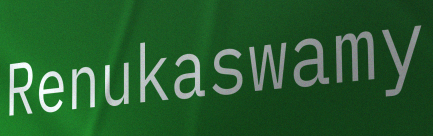
Renukaswamy